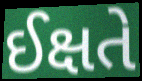
ઈક્ષતે